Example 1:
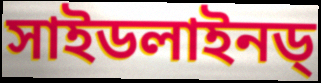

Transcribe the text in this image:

সাইডলাইনড্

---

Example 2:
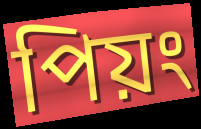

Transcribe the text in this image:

পিয়ং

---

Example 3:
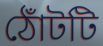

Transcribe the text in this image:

ঠোঁটটি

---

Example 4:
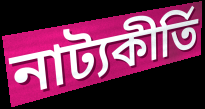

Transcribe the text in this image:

নাট্যকীর্তি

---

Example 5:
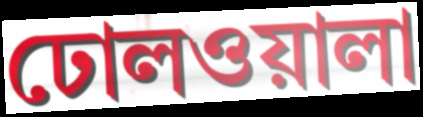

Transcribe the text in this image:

ঢোলওয়ালা